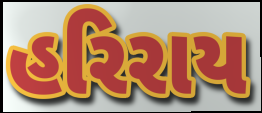
હરિરાય